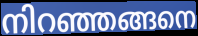
നിറഞ്ഞങ്ങനെ